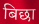
बिछा